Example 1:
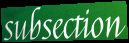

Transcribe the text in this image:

subsection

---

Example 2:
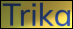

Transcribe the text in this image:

Trika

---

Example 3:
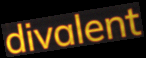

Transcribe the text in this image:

divalent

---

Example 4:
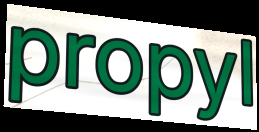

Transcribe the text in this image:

propyl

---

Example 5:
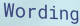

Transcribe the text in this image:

Wording